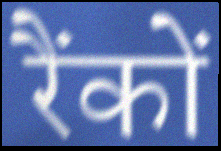
रैंकों